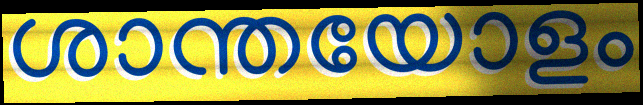
ശാന്തയോളം